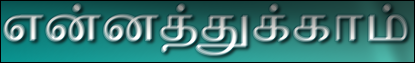
என்னத்துக்காம்